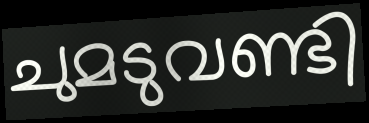
ചുമടുവണ്ടി